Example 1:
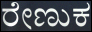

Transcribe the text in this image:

ರೇಣುಕ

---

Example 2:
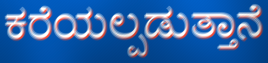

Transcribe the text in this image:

ಕರೆಯಲ್ಪಡುತ್ತಾನೆ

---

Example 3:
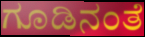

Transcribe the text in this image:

ಗೂಡಿನಂತೆ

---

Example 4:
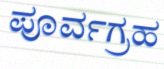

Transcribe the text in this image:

ಪೂರ್ವಗ್ರಹ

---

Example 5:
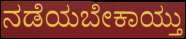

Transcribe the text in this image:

ನಡೆಯಬೇಕಾಯ್ತು